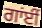
ਗਾਂਈਂ